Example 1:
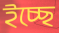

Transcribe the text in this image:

ইচ্ছে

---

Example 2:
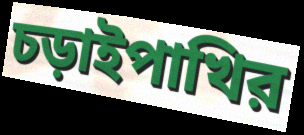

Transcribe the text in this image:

চড়াইপাখির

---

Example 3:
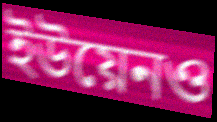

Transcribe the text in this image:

ইউয়েনও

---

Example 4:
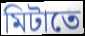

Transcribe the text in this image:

মিটাতে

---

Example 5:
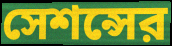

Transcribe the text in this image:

সেশন্সের